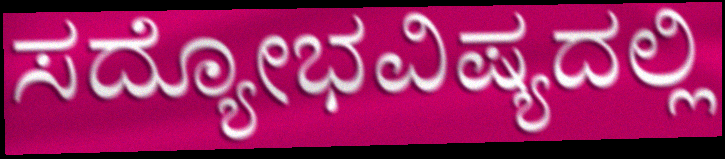
ಸದ್ಯೋಭವಿಷ್ಯದಲ್ಲಿ